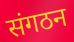
संगठन